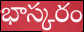
భాస్కరం